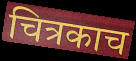
चित्रकाच